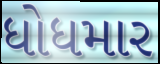
ધોધમાર